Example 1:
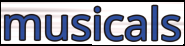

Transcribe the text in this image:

musicals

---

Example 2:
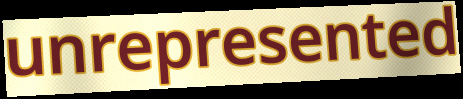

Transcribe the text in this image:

unrepresented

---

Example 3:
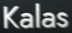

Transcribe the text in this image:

Kalas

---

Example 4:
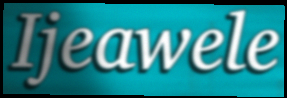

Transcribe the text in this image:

Ijeawele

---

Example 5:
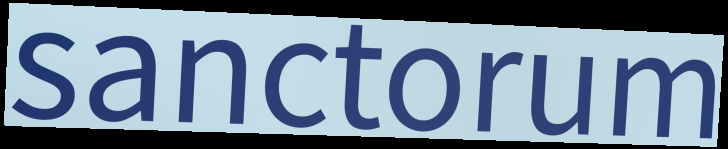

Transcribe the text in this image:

sanctorum